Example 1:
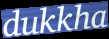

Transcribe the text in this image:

dukkha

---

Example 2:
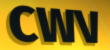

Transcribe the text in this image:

CWV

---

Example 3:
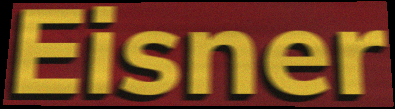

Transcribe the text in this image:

Eisner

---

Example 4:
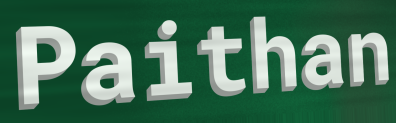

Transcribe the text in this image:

Paithan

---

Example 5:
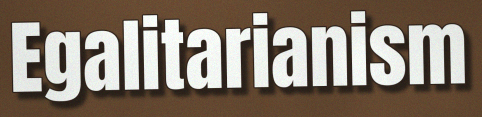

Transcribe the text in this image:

Egalitarianism